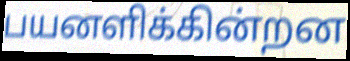
பயனளிக்கின்றன